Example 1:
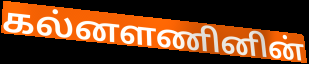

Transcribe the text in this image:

கல்னளணினின்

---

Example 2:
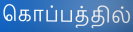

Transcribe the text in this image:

கொப்பத்தில்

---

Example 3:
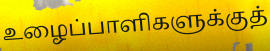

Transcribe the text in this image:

உழைப்பாளிகளுக்குத்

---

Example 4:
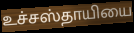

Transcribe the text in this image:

உச்சஸ்தாயியை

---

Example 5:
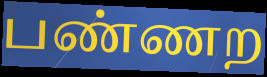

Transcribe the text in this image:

பண்ணற